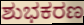
ಶುಭಕರಣ